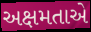
અક્ષમતાએ